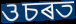
ওচৰত